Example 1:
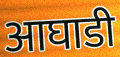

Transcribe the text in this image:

आघाडी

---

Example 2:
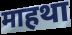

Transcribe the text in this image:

माहथा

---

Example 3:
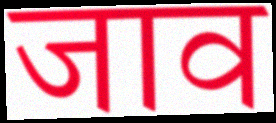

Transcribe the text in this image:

जाव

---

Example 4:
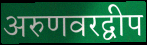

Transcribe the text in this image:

अरुणवरद्वीप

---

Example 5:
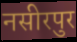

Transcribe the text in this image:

नसीरपुर